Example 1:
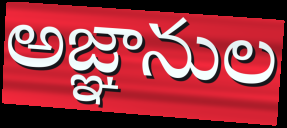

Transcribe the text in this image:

అజ్ఞానుల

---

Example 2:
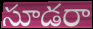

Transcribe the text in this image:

సూడరా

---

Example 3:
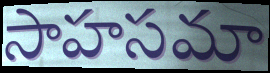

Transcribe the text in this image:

సాహసమా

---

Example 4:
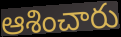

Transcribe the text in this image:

ఆశించారు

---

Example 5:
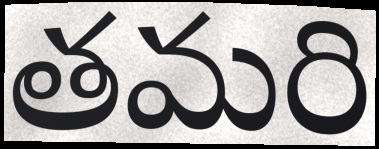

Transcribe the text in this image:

తమరి